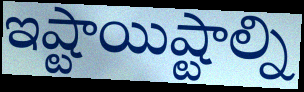
ఇష్టాయిష్టాల్ని